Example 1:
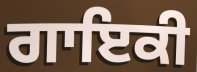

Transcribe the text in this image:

ਗਾਇਕੀ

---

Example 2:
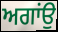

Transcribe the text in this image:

ਅਗਾਂਉ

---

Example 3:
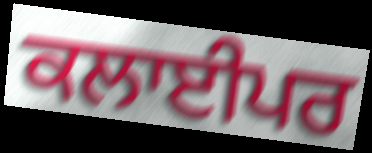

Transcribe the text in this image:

ਕਲਾਈਪਰ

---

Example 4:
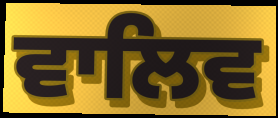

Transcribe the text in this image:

ਵਾਲਿਵ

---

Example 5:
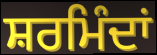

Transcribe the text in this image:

ਸ਼ਰਮਿੰਦਾਂ